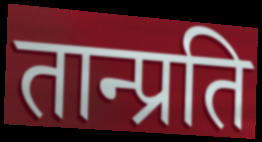
तान्प्रति